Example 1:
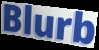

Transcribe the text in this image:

Blurb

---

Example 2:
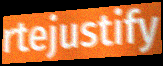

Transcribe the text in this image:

rtejustify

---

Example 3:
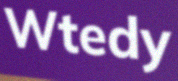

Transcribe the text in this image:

Wtedy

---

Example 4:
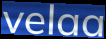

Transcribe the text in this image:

velaa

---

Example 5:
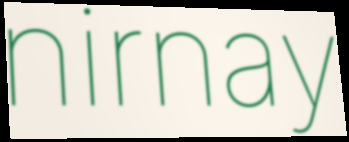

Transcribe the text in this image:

nirnay